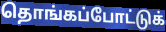
தொங்கப்போட்டுக்